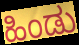
ಹಿಂಡು